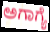
ಅಗಾಗ್ಯೆ